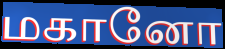
மகானோ